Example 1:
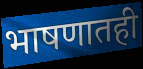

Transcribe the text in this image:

भाषणातही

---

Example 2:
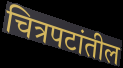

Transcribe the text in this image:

चित्रपटांतील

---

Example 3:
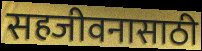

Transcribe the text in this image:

सहजीवनासाठी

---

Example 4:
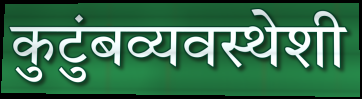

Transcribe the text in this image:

कुटुंबव्यवस्थेशी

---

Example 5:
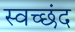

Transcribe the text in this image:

स्वच्छंद